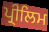
ਪ੍ਰੀਲਿਮ